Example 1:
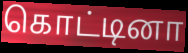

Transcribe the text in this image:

கொட்டினா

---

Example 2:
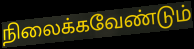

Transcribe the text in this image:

நிலைக்கவேண்டும்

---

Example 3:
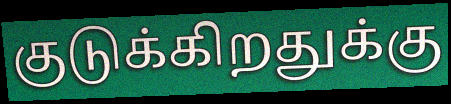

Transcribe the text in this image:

குடுக்கிறதுக்கு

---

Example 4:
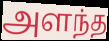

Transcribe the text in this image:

அளந்த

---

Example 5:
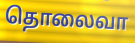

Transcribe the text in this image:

தொலைவா